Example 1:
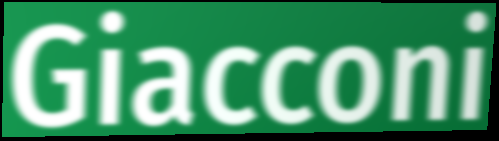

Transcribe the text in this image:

Giacconi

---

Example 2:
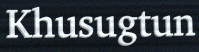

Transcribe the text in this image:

Khusugtun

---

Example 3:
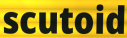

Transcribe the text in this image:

scutoid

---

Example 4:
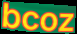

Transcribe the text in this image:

bcoz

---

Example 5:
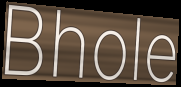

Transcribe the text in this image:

Bhole